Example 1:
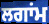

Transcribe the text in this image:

ਲਗਾਂਮ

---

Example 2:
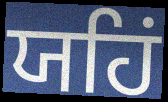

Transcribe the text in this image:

ਯਹਿਂ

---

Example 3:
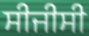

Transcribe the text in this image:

ਸੀਜੀਸੀ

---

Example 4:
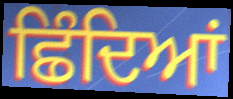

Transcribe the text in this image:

ਛਿੰਦਿਆਂ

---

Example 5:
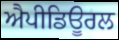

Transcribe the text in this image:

ਐਪੀਡਿਊਰਲ